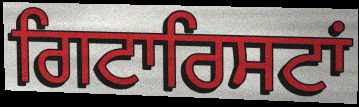
ਗਿਟਾਰਿਸਟਾਂ